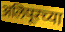
अलिपूरच्या